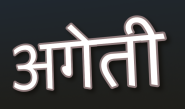
अगेती